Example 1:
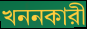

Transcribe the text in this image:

খননকারী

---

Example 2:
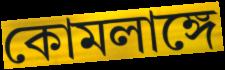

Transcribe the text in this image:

কোমলাঙ্গে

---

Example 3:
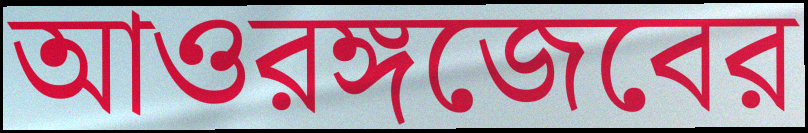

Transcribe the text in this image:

আওরঙ্গজেবের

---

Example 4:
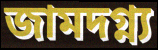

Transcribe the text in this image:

জামদগ্ন্য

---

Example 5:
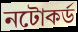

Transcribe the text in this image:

নটোকর্ড